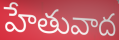
హేతువాద